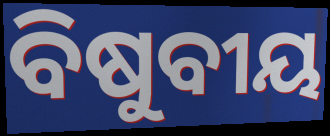
ବିଷୁବୀୟ